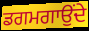
ਡਗਮਗਾਉਂਦੇ